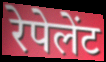
रेपेलेंट